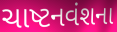
ચાષ્ટનવંશના